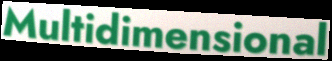
Multidimensional